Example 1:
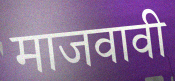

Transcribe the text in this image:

माजवावी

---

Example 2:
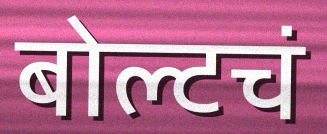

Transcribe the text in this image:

बोल्टचं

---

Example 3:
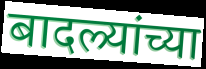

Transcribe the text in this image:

बादल्यांच्या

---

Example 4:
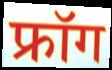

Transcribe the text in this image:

फ्रॉग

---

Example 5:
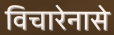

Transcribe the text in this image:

विचारेनासे